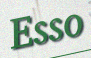
Esso